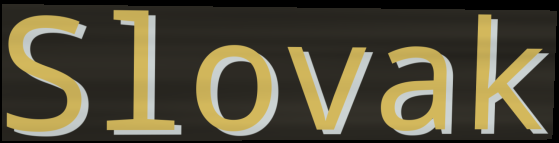
Slovak